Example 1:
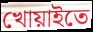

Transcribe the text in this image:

খোয়াইতে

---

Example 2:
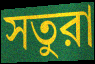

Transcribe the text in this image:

সতুরা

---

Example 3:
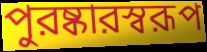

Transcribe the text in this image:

পুরষ্কারস্বরূপ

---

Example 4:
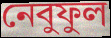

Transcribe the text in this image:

নেবুফুল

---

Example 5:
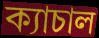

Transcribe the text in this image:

ক্যাচাল